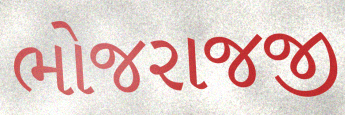
ભોજરાજજી